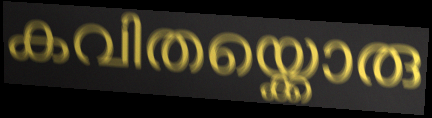
കവിതയ്ക്കൊരു